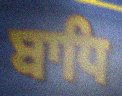
ਬਾਧਿ